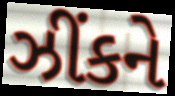
ઝીંકને